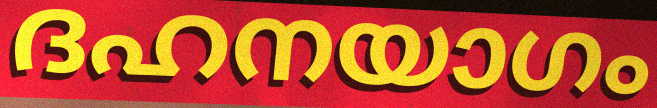
ദഹനയാഗം